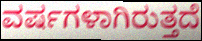
ವರ್ಷಗಳಾಗಿರುತ್ತದೆ